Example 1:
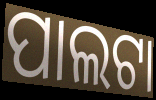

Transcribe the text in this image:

ପାଲଟା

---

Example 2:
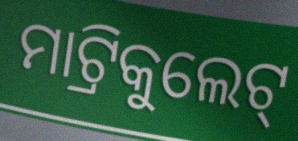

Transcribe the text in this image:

ମାଟ୍ରିକୁଲେଟ୍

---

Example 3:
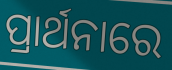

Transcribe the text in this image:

ପ୍ରାର୍ଥନାରେ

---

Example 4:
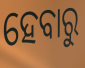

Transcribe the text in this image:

ହେବାରୁ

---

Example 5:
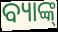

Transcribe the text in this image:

ବ୍ୟାଙ୍କ୍